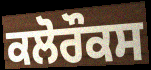
ਕਲੋਰੌਕਸ